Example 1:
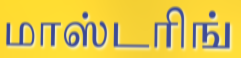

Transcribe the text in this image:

மாஸ்டரிங்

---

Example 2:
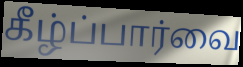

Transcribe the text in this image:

கீழ்ப்பார்வை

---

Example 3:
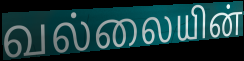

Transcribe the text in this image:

வல்லையின்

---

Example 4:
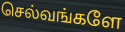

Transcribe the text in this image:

செல்வங்களே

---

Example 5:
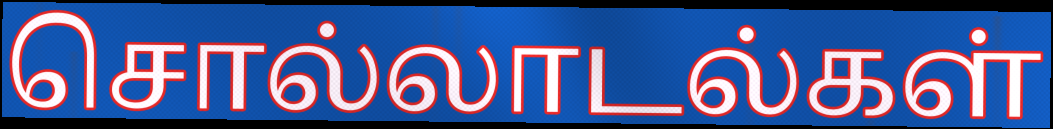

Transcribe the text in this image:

சொல்லாடல்கள்